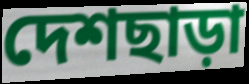
দেশছাড়া